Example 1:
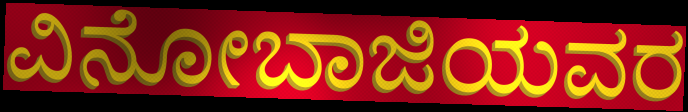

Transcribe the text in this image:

ವಿನೋಬಾಜಿಯವರ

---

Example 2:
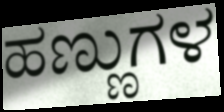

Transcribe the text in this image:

ಹಣ್ಣುಗಳ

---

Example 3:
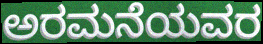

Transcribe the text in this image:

ಅರಮನೆಯವರ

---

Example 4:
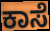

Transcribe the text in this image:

ಕಾಸೆ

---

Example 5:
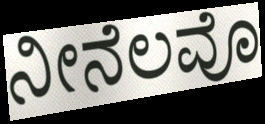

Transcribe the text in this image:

ನೀನೆಲವೊ